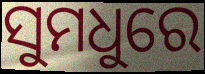
ସୁମଧୁରେ